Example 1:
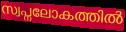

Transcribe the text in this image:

സ്വപ്നലോകത്തിൽ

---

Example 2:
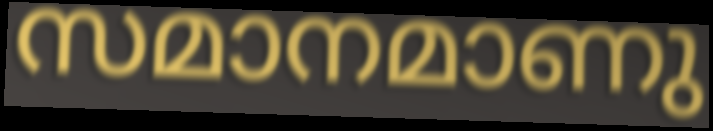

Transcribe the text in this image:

സമാനമാണു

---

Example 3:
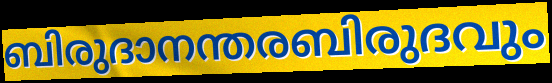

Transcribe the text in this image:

ബിരുദാനന്തരബിരുദവും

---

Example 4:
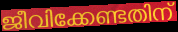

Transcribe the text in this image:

ജീവിക്കേണ്ടതിന്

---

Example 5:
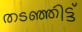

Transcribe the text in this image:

തടഞ്ഞിട്ട്